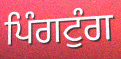
ਪਿੰਗਟੁੰਗ